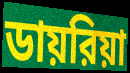
ডায়রিয়া